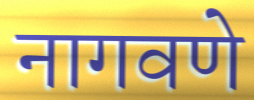
नागवणे